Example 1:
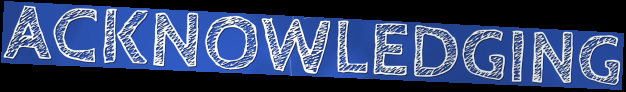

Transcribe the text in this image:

ACKNOWLEDGING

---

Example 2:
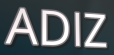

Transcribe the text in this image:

ADIZ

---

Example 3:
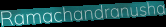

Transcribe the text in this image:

Ramachandranusha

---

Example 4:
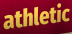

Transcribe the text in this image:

athletic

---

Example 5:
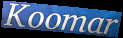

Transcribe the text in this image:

Koomar